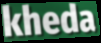
kheda